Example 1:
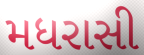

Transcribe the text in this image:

મધરાસી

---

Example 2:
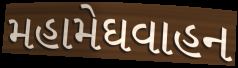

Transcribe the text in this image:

મહામેઘવાહન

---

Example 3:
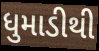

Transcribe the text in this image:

ધુમાડીથી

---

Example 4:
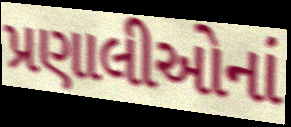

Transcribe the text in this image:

પ્રણાલીઓનાં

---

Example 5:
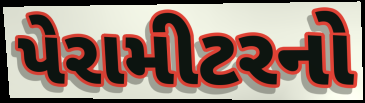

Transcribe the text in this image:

પેરામીટરનો